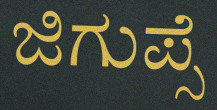
ಜಿಗುಪ್ಸೆ